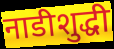
नाडीशुद्धी